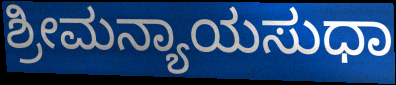
ಶ್ರೀಮನ್ಯಾಯಸುಧಾ